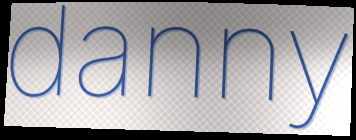
danny